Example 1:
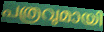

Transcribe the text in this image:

പത്രവുമായി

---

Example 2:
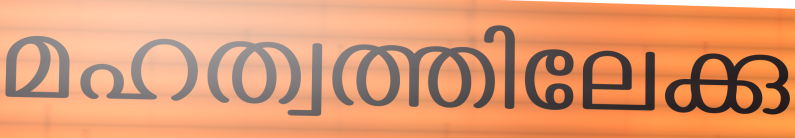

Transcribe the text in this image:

മഹത്വത്തിലേക്കു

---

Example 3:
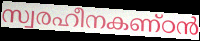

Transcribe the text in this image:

സ്വരഹീനകണ്ഠൻ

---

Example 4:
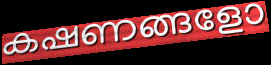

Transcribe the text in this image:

കഷണങ്ങളോ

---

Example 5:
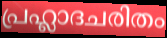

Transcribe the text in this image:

പ്രഹ്ലാദചരിതം